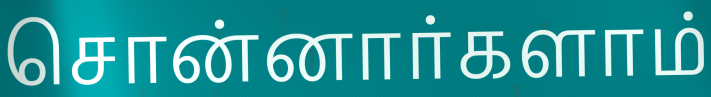
சொன்னார்களாம்